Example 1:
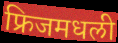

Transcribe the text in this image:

फ्रिजमधली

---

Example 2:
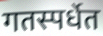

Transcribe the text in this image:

गतस्पर्धेत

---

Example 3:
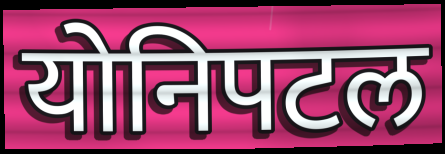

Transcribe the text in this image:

योनिपटल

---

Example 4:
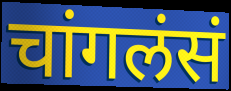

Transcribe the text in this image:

चांगलंसं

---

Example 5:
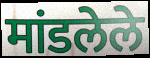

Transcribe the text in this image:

मांडलेले